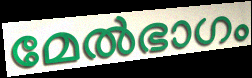
മേൽഭാഗം